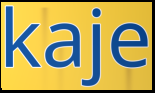
kaje